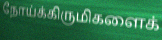
நோய்க்கிருமிகளைக்